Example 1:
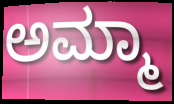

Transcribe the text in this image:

ಅಮ್ಮಾ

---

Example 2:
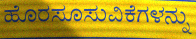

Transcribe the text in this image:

ಹೊರಸೂಸುವಿಕೆಗಳನ್ನು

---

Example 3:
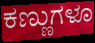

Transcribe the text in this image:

ಕಣ್ಣುಗಳೂ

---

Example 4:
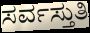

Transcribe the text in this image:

ಸರ್ವಸ್ತುತಿ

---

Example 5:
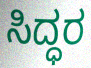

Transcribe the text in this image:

ಸಿದ್ಧರ